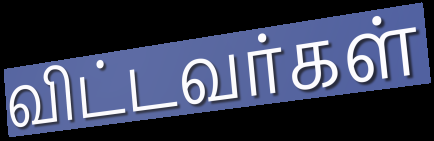
விட்டவர்கள்